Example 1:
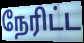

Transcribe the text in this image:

நேரிட்ட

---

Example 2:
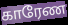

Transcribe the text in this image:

காரேண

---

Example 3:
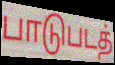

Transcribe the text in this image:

பாடுபடத்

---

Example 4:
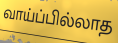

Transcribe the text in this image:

வாய்ப்பில்லாத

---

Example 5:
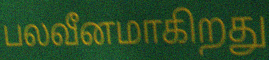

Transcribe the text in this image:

பலவீனமாகிறது